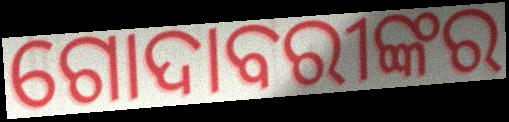
ଗୋଦାବରୀଙ୍କର